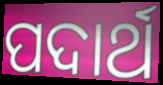
ପଦାର୍ଥ